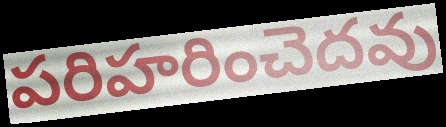
పరిహరించెదవు